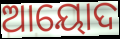
ଆୟୋଦ